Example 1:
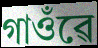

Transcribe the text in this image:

গাওঁৱে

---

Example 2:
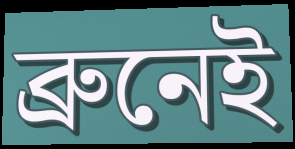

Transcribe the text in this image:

ব্ৰুনেই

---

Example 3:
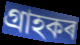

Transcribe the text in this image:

গ্ৰাহকৰ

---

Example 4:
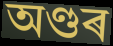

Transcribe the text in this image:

অণ্ডৰ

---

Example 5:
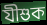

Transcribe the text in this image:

যীশুক